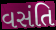
વસંતિ